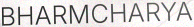
BHARMCHARYA